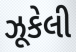
ઝૂકેલી